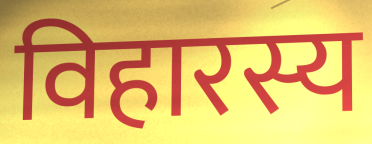
विहारस्य